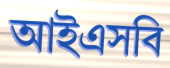
আইএসবি